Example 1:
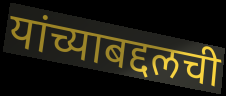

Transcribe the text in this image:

यांच्याबद्दलची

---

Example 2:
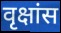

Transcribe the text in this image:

वृक्षांस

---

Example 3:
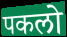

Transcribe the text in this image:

पकलो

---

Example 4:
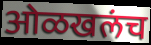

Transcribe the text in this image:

ओळखलंच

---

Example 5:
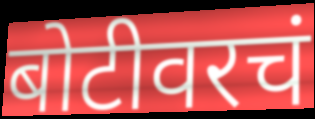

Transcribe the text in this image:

बोटीवरचं